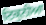
ਟਿਕੁਨੀਆ